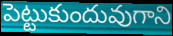
పెట్టుకుందువుగాని